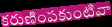
కరుణింపకుంటివా